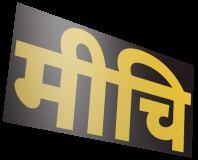
मीचि